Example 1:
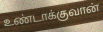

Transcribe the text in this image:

உண்டாக்குவான்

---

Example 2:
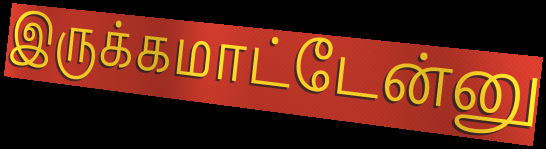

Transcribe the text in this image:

இருக்கமாட்டேன்னு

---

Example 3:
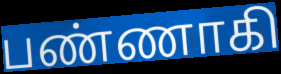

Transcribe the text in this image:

பண்ணாகி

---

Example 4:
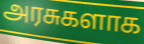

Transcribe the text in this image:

அரசுகளாக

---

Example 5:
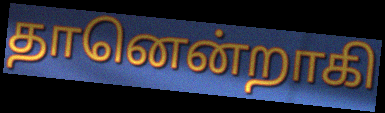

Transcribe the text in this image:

தானென்றாகி